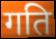
गति